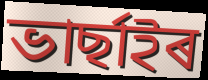
ভাৰ্ছাইৰ